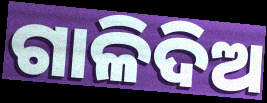
ଗାଳିଦିଅ